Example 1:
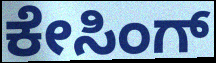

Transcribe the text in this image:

ಕೇಸಿಂಗ್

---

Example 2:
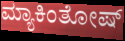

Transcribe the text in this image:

ಮ್ಯಾಕಿಂತೋಷ್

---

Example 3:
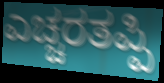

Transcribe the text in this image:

ಎಚ್ಚರತಪ್ಪಿ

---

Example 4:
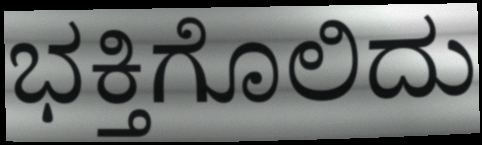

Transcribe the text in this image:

ಭಕ್ತಿಗೊಲಿದು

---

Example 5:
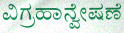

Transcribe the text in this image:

ವಿಗ್ರಹಾನ್ವೇಷಣೆ